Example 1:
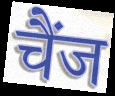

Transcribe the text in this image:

चैंज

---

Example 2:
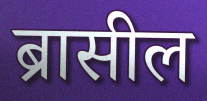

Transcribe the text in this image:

ब्रासील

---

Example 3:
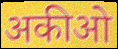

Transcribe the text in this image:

अकीओ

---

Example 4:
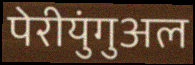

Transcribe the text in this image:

पेरीयुंगुअल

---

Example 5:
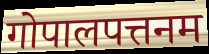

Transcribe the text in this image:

गोपालपत्तनम